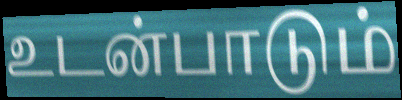
உடன்பாடும்